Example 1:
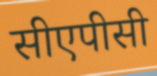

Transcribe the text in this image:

सीएपीसी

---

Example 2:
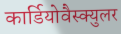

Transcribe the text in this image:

कार्डियोवैस्क्युलर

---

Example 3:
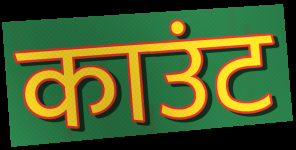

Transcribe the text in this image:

काउंट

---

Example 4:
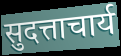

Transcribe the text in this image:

सुदत्ताचार्य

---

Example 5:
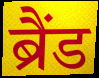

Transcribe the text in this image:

ब्रैंड